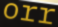
orr